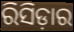
ରିସିଡ଼ାର